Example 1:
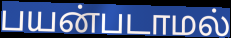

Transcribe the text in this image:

பயன்படாமல்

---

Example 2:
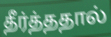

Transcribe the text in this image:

தீர்த்ததால்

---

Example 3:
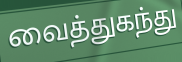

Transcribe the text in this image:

வைத்துகந்து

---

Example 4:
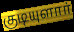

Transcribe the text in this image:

குடியுளார்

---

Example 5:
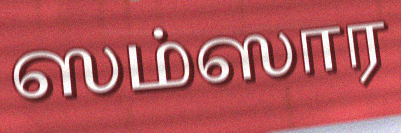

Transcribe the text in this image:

ஸம்ஸார